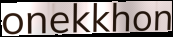
onekkhon